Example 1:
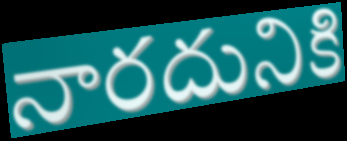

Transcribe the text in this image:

నారదునికి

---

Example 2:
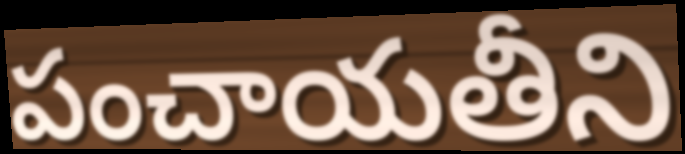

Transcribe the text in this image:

పంచాయతీని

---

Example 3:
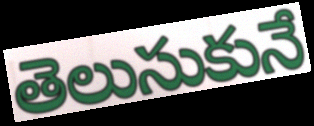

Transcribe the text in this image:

తెలుసుకునే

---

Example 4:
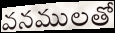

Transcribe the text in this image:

వనములతో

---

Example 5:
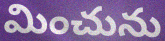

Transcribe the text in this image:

మించును